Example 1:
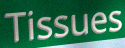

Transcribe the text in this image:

Tissues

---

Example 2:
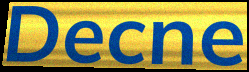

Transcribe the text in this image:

Decne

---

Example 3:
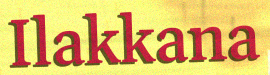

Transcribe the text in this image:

Ilakkana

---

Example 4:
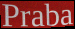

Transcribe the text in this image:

Praba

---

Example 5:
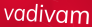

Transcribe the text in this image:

vadivam